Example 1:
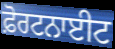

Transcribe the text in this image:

ਫ਼ੋਰਟਨਾਈਟ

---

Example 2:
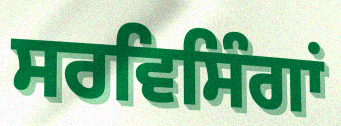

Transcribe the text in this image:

ਸਰਵਿਸਿੰਗਾਂ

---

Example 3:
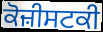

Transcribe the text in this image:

ਕੋਜ਼ੀਸਟਕੀ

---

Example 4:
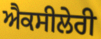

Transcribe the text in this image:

ਐਕਸੀਲੇਰੀ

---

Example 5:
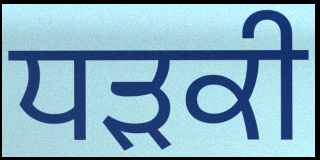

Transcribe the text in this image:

ਧੜਕੀ